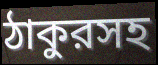
ঠাকুরসহ